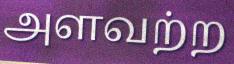
அளவற்ற